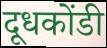
दूधकोंडी